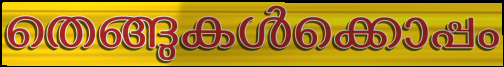
തെങ്ങുകൾക്കൊപ്പം